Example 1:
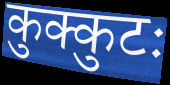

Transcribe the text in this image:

कुक्कुटः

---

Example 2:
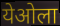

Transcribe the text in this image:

येओला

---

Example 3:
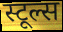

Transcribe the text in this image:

स्टूल्स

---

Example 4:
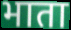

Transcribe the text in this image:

भाता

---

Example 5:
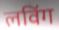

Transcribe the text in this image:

लविंग